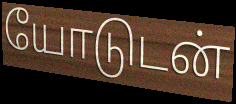
யோடுடன்